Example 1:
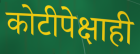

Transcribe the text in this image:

कोटीपेक्षाही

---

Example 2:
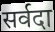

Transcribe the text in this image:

सर्वदा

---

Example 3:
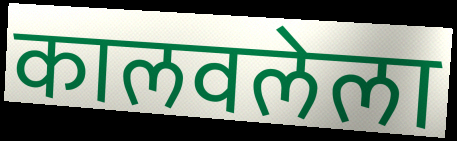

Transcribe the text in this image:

कालवलेला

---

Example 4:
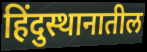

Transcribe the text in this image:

हिंदुस्थानातील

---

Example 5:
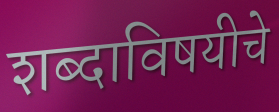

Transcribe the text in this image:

शब्दाविषयीचे